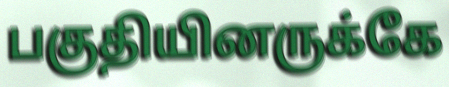
பகுதியினருக்கே